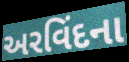
અરવિંદના